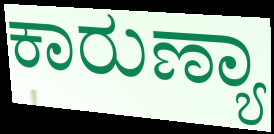
ಕಾರುಣ್ಯಾ